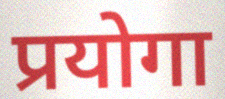
प्रयोगा